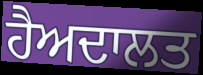
ਹੈਅਦਾਲਤ